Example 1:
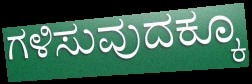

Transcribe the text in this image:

ಗಳಿಸುವುದಕ್ಕೂ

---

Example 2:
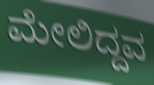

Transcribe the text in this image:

ಮೇಲಿದ್ದವ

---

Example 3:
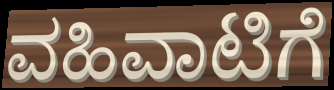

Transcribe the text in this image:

ವಹಿವಾಟಿಗೆ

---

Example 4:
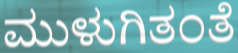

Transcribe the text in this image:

ಮುಳುಗಿತಂತೆ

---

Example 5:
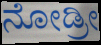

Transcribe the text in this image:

ನೋಡ್ರೀ